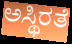
ಅಸ್ಥಿರತೆ